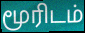
மூரிடம்